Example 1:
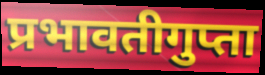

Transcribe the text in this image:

प्रभावतीगुप्ता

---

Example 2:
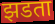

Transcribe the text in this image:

झडता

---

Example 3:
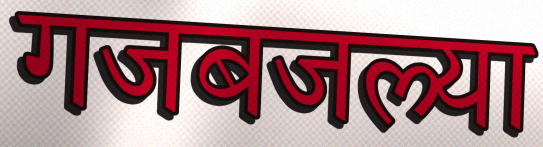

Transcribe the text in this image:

गजबजल्या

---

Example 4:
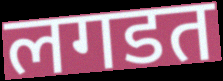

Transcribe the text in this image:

लगडत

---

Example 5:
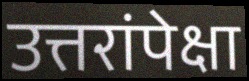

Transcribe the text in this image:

उत्तरांपेक्षा